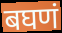
बघणं